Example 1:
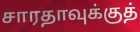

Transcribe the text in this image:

சாரதாவுக்குத்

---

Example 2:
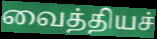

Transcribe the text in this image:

வைத்தியச்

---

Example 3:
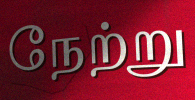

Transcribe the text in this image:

நேற்று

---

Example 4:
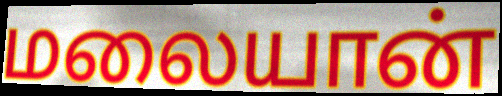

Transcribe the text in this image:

மலையான்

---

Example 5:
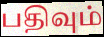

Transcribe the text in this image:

பதிவும்